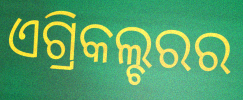
ଏଗ୍ରିକଲ୍ଚରର